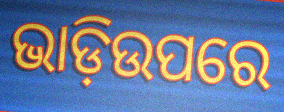
ଭାଡ଼ିଉପରେ